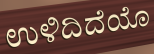
ಉಳಿದಿದೆಯೊ